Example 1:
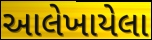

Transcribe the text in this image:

આલેખાયેલા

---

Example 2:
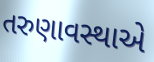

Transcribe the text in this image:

તરુણાવસ્થાએ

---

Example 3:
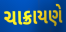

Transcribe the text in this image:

ચાક્રાયણે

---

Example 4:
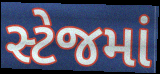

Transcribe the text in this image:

સ્ટેજમાં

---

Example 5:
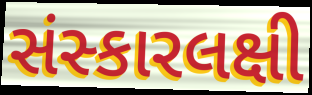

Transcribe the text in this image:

સંસ્કારલક્ષી